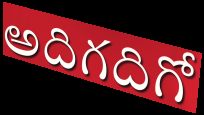
అదిగదిగో